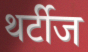
थर्टीज